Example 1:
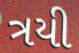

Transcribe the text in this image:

ત્રયી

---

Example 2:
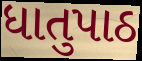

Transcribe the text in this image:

ધાતુપાઠ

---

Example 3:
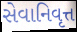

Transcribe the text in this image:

સેવાનિવૃત્ત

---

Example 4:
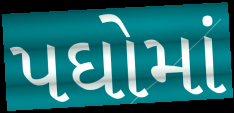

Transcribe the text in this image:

પઘોમાં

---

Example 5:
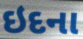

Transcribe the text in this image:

ઇદના